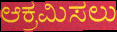
ಆಕ್ರಮಿಸಲು